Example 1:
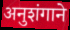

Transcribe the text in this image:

अनुशंगाने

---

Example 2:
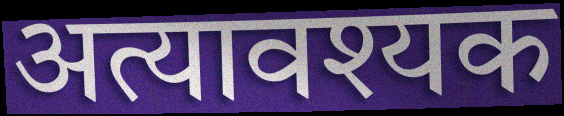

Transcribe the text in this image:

अत्यावश्‍यक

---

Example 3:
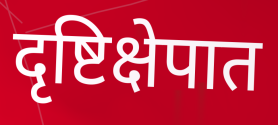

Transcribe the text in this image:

दृष्टिक्षेपात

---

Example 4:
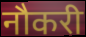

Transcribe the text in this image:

नौकरी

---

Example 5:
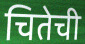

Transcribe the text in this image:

चितेची